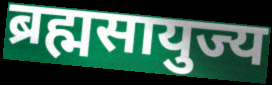
ब्रह्मसायुज्य